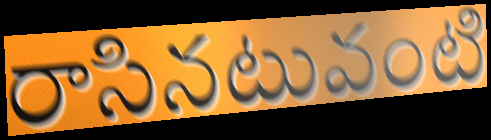
రాసినటువంటి